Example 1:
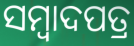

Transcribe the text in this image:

ସମ୍ୱାଦପତ୍ର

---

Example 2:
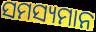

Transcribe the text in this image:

ସମସ୍ୟମାନ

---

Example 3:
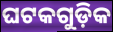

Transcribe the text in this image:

ଘଟକଗୁଡ଼ିକ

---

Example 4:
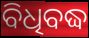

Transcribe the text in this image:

ବିଧିବଦ୍ଧ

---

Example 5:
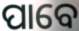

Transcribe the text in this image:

ପାବେ